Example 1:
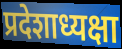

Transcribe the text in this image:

प्रदेशाध्यक्षा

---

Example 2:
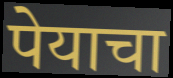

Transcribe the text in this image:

पेयाचा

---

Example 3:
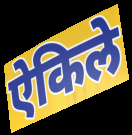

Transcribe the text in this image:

ऐकिले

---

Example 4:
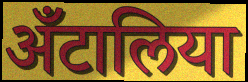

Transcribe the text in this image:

अँटालिया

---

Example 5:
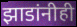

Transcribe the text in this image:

झाडांनीही